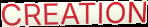
CREATION